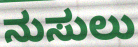
ನುಸುಲು